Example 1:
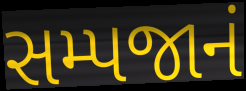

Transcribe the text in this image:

સમ્પજાનં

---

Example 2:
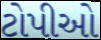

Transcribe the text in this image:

ટોપીઓ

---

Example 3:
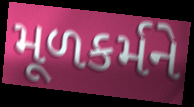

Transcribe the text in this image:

મૂળકર્મને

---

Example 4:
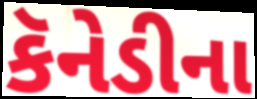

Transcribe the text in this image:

કૅનેડીના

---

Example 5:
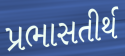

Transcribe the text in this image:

પ્રભાસતીર્થ